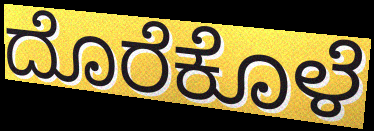
ದೊರೆಕೊಳೆ